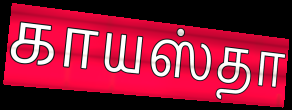
காயஸ்தா